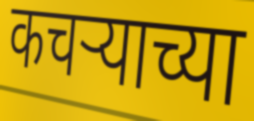
कचर्‍याच्या